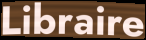
Libraire